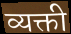
व्यक्ती